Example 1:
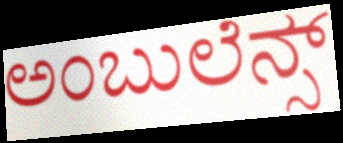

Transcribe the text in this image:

ಅಂಬುಲೆನ್ಸ್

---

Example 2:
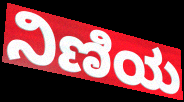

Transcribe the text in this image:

ನಿಣಿಯ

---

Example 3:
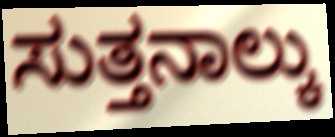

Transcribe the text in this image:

ಸುತ್ತನಾಲ್ಕು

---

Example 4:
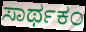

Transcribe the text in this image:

ಸಾರ್ಥಕಂ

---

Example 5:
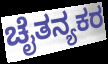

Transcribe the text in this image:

ಚೈತನ್ಯಕರ